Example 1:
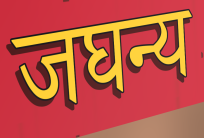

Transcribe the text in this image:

जघन्य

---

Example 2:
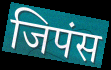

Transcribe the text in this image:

जिपंस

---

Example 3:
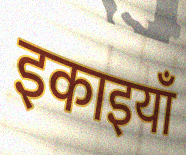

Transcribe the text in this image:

इकाइयाँ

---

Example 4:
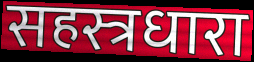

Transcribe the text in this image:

सहस्त्रधारा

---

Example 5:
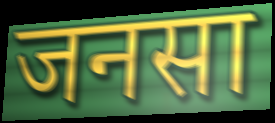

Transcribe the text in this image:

जनसा